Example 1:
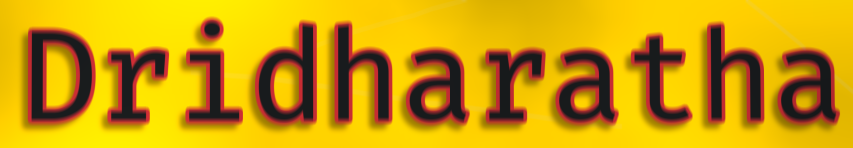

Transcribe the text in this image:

Dridharatha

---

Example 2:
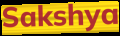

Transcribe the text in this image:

Sakshya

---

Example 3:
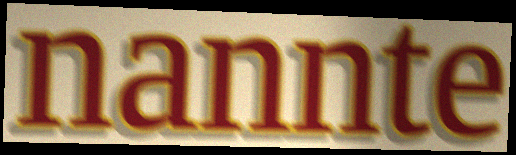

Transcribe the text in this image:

nannte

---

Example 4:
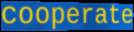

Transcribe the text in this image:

cooperate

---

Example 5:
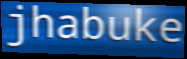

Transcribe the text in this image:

jhabuke